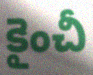
కైంచీ